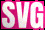
SVG